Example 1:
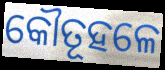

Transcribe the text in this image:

କୌତୂହଳେ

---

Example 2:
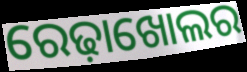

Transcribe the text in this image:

ରେଢ଼ାଖୋଲର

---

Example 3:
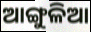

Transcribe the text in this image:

ଆଙ୍ଗୁଳିଆ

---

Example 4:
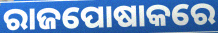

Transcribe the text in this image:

ରାଜପୋଷାକରେ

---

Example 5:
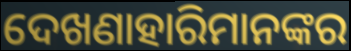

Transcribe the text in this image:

ଦେଖଣାହାରିମାନଙ୍କର